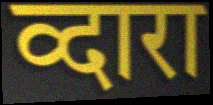
व्दारा